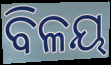
ବିଳୟ